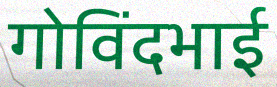
गोविंदभाई